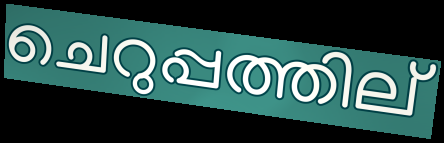
ചെറുപ്പത്തില്